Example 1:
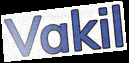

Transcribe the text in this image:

Vakil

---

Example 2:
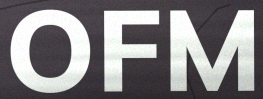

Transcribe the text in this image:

OFM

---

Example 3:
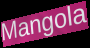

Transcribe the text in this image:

Mangola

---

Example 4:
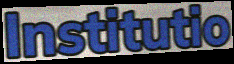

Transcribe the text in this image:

Institutio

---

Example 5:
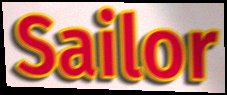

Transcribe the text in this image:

Sailor